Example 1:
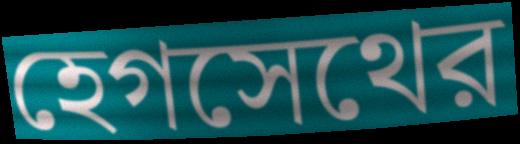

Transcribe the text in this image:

হেগসেথের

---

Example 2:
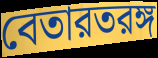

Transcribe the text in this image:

বেতারতরঙ্গ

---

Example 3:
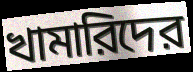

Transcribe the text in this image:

খামারিদের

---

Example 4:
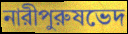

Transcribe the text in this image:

নারীপুরুষভেদ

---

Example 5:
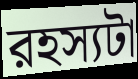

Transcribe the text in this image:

রহস্যটা